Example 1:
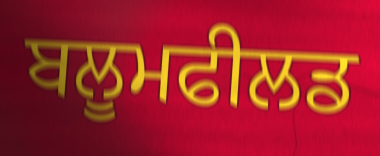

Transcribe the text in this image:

ਬਲੂਮਫੀਲਡ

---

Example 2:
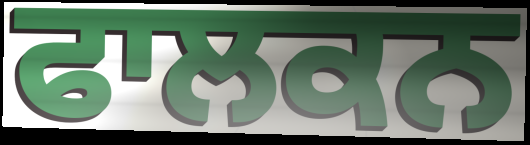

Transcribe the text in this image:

ਫਾਲਕਨ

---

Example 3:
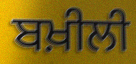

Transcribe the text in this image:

ਬਖ਼ੀਲੀ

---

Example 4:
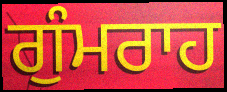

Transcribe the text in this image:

ਗੁੰਮਰਾਹ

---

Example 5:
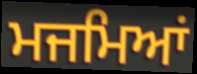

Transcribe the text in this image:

ਮਜਮਿਆਂ